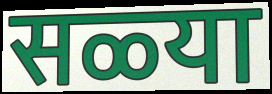
सळ्या